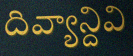
దివ్యాన్దివి